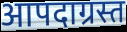
आपदाग्रस्त